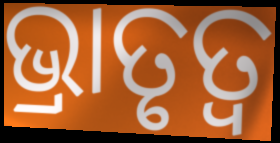
ଭ୍ରାତୃତ୍ଵ